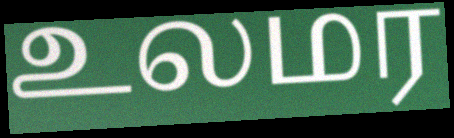
உலமர